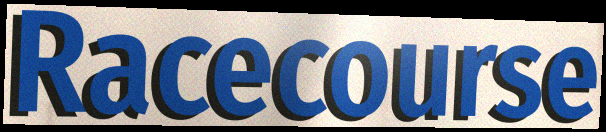
Racecourse